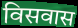
विसवास